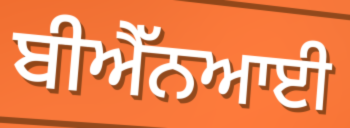
ਬੀਐੱਨਆਈ